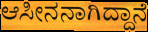
ಆಸೀನನಾಗಿದ್ದಾನೆ